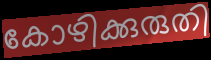
കോഴിക്കുരുതി